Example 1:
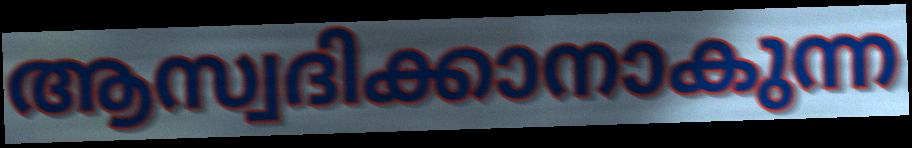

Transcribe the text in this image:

ആസ്വദിക്കാനാകുന്ന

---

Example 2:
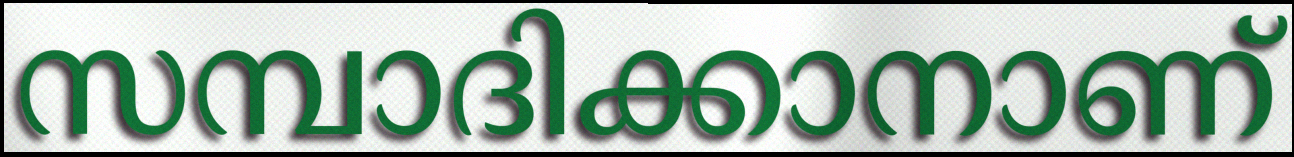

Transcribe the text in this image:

സമ്പാദിക്കാനാണ്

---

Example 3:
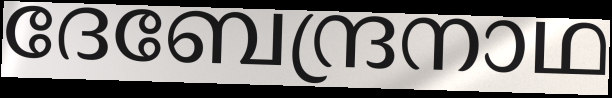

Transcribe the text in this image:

ദേബേന്ദ്രനാഥ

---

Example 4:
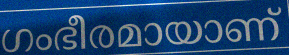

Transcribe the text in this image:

ഗംഭീരമായാണ്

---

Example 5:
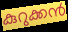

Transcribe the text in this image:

കുറുക്കൻ